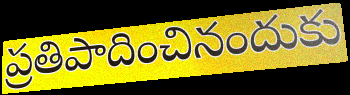
ప్రతిపాదించినందుకు